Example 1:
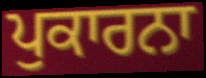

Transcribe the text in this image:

ਪੁਕਾਰਨਾ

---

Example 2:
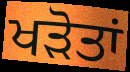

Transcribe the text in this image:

ਖੜੋਤਾਂ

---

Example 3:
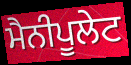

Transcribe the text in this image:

ਮੈਨੀਪੂਲੇਟ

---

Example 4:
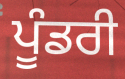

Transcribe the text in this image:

ਪੂੰਡਰੀ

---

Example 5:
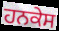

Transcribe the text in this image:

ਹਨਕੇਸ